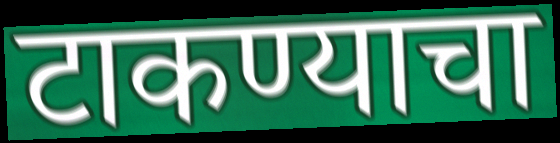
टाकण्याचा